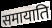
समायाति